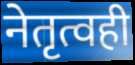
नेतृत्वही